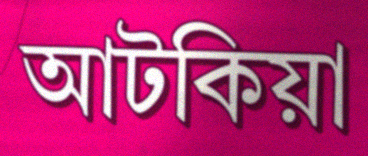
আটকিয়া